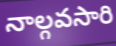
నాల్గవసారి